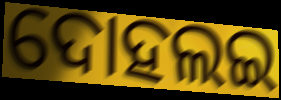
ଦୋହଲଇ